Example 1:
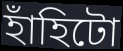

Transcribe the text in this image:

হাঁহিটো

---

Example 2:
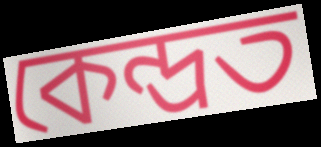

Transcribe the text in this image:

কেন্দ্ৰত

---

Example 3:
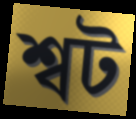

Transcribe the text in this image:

শ্বট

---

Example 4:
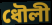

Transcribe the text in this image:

ধৌলী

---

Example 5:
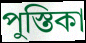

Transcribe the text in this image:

পুস্তিকা